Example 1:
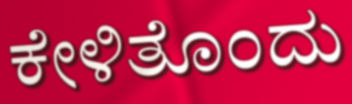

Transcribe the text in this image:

ಕೇಳಿತೊಂದು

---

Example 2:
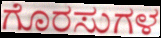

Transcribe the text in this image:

ಗೊರಸುಗಳ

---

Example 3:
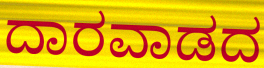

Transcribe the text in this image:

ದಾರವಾಡದ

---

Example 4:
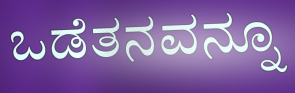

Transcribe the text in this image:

ಒಡೆತನವನ್ನೂ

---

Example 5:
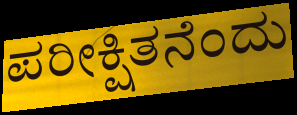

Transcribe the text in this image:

ಪರೀಕ್ಷಿತನೆಂದು